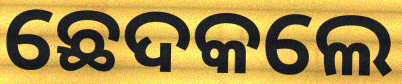
ଛେଦକଲେ